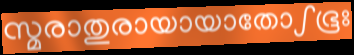
സ്മരാതുരായായാതോഽഭൂഃ